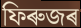
ফিৰুজৰ